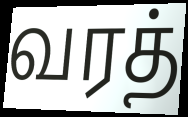
வரத்